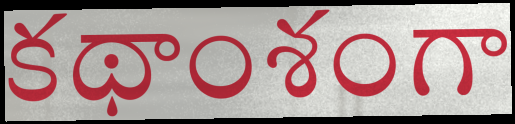
కథాంశంగా